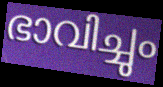
ഭാവിച്ചും